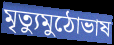
মৃত্যুমুঠোভাষ